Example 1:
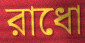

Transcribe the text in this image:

রাধো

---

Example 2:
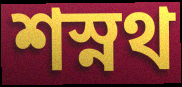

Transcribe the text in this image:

শস্নথ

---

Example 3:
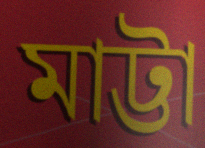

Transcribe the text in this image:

মাট্টা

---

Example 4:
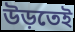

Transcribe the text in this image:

উড়তেই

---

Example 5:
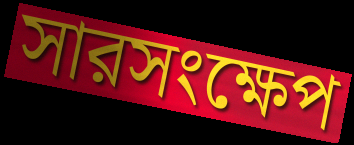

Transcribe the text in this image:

সারসংক্ষেপ